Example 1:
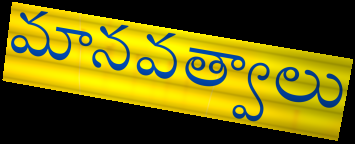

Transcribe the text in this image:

మానవత్వాలు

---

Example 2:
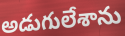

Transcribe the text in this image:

అడుగులేశాను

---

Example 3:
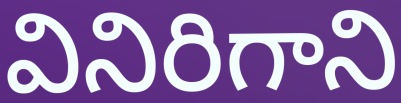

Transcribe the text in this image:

వినిరిగాని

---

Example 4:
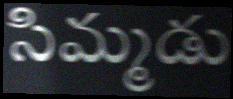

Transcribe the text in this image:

సిమ్మడు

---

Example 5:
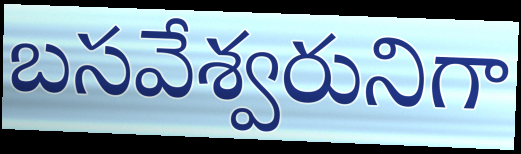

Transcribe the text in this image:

బసవేశ్వరునిగా